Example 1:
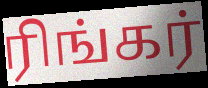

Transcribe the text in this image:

ரிங்கர்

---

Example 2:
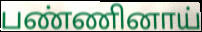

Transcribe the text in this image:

பண்ணினாய்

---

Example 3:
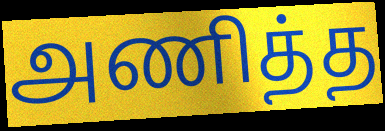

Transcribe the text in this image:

அணித்த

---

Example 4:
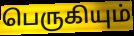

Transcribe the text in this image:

பெருகியும்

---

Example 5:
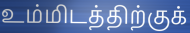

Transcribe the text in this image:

உம்மிடத்திற்குக்